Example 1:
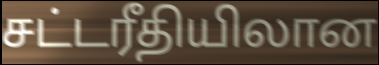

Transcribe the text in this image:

சட்டரீதியிலான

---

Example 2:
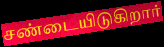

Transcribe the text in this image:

சண்டையிடுகிறார்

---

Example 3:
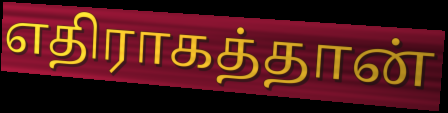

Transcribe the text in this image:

எதிராகத்தான்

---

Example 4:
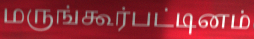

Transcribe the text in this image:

மருங்கூர்பட்டினம்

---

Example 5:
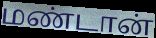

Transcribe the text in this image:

மண்டான்